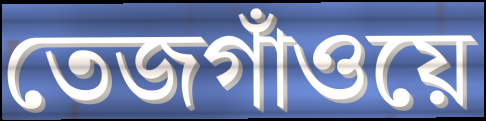
তেজগাঁওয়ে